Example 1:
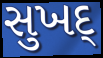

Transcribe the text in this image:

સુખદ્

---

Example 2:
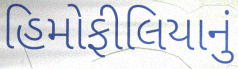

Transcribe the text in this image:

હિમોફીલિયાનું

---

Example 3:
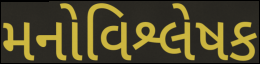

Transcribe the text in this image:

મનોવિશ્લેષક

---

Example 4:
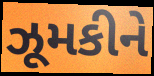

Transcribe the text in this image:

ઝૂમકીને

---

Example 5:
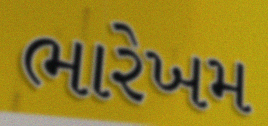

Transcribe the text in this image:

ભારેખમ